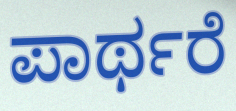
ಪಾರ್ಥರೆ